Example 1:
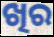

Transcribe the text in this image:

ଖିର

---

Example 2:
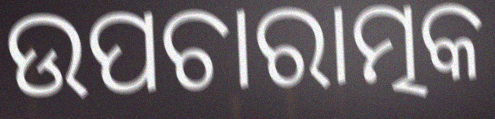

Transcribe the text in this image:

ଉପଚାରାତ୍ମକ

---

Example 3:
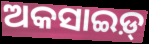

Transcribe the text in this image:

ଅକସାଇଡ଼୍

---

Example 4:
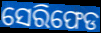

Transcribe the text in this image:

ସେରିଫେଡ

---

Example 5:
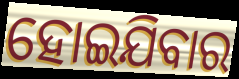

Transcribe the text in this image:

ହୋଇଯିବାର